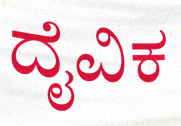
ದೈವಿಕ